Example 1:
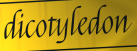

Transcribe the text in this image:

dicotyledon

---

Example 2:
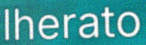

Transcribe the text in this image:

lherato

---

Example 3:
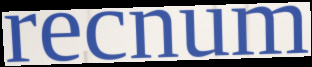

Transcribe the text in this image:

recnum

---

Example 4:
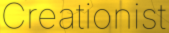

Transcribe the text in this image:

Creationist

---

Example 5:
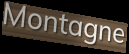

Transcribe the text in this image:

Montagne